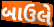
બાઉલે